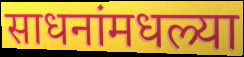
साधनांमधल्या